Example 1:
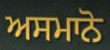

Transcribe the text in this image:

ਅਸਮਾਨੋ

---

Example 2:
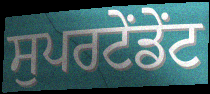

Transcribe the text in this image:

ਸੁਪਰਟੇਂਡੇਂਟ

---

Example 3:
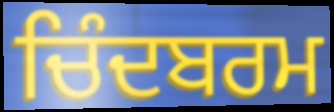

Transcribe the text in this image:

ਚਿੰਦਬਰਮ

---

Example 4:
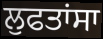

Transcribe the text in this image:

ਲੁਫਤਾਂਸਾ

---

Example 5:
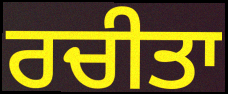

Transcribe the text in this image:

ਰਚੀਤਾ